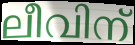
ലീവിന്